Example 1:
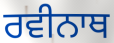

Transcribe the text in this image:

ਰਵੀਨਾਥ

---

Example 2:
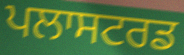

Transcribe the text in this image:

ਪਲਾਸਟਰਡ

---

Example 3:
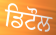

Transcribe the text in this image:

ਡਿਟੌਲ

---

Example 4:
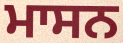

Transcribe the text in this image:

ਮਾਸਨ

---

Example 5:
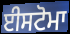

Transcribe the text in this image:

ਈਸਟੋਮਾ